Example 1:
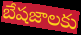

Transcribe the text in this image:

బేషజాలకు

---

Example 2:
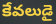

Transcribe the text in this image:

కేవలుడై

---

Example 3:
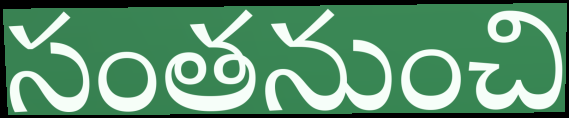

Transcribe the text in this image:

సంతనుంచి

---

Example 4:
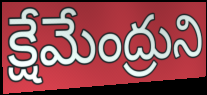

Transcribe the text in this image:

క్షేమేంద్రుని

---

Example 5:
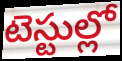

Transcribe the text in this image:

టెస్టుల్లో